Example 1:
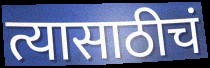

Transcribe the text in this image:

त्यासाठीचं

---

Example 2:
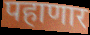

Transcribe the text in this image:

पहाणार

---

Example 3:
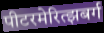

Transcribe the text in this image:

पीटरमेरित्झबर्ग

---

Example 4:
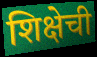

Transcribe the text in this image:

शिक्षेची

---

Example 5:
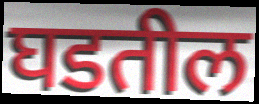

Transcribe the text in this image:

घडतील